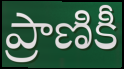
ప్రాణికీ